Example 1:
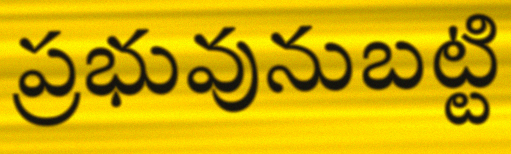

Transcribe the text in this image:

ప్రభువునుబట్టి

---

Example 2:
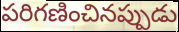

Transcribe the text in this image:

పరిగణించినప్పుడు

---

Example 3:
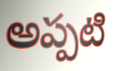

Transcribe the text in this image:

అప్పటి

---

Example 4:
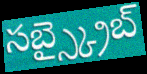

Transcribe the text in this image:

సబ్స్క్రైబ్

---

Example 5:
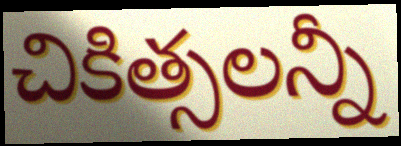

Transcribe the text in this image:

చికిత్సలన్నీ